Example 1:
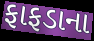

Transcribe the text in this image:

ફાફડાના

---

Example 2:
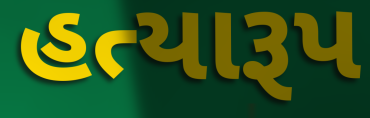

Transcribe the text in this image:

હત્યારૂપ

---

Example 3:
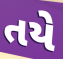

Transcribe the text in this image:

તયે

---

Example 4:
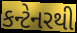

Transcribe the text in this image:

કન્ટેનરથી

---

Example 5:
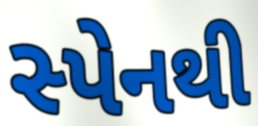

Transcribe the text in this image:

સ્પેનથી